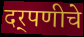
दर्पणीचे